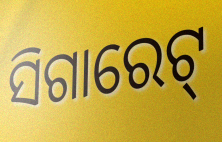
ସିଗାରେଟ୍